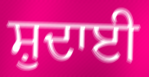
ਸ਼ੁਦਾਈ